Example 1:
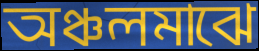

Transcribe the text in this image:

অঞ্চলমাঝে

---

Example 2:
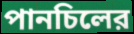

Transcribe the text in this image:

পানচিলের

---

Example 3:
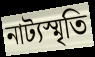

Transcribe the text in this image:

নাট্যস্মৃতি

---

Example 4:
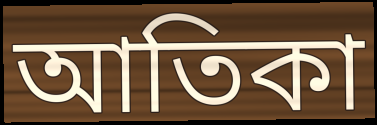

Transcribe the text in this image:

আতিকা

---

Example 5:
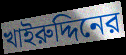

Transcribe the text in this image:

খাইরুদ্দিনের